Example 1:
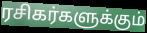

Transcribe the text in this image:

ரசிகர்களுக்கும்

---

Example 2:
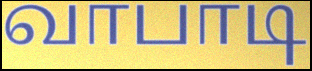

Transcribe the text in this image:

வாபாடி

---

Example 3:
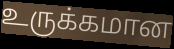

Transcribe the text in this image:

உருக்கமான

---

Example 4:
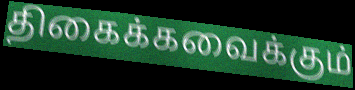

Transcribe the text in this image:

திகைக்கவைக்கும்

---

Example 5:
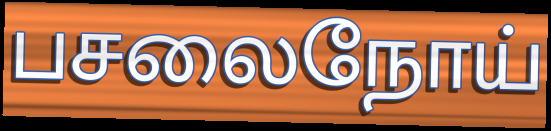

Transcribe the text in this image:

பசலைநோய்